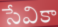
సేవికా